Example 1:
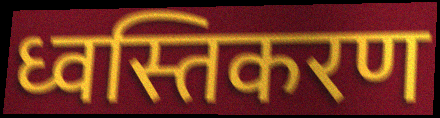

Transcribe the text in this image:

ध्वस्तिकरण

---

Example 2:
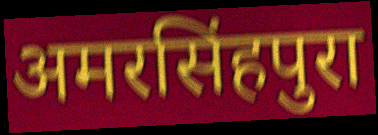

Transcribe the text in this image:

अमरसिंहपुरा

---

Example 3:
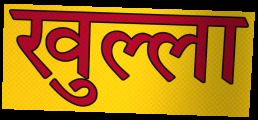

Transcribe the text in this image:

खुल्ला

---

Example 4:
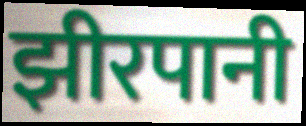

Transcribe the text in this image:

झीरपानी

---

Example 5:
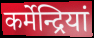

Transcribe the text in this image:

कर्मेन्द्रियां